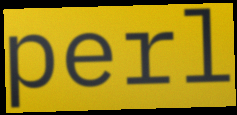
perl